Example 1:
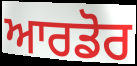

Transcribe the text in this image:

ਆਰਡੋਰ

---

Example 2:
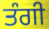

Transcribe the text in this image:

ਤੰਗੀ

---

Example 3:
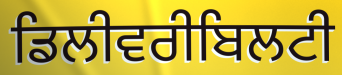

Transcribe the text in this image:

ਡਿਲੀਵਰੀਬਿਲਟੀ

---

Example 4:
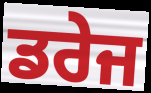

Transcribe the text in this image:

ਡਰੇਜ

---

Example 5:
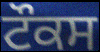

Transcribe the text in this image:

ਟੌਕਸ